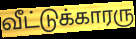
வீட்டுக்காரரு